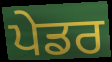
ਪੇਡਰ